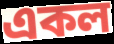
একল